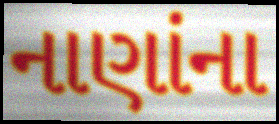
નાણાંના